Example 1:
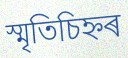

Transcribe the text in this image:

স্মৃতিচিহ্নৰ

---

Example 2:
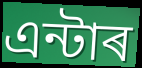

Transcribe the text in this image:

এন্টাৰ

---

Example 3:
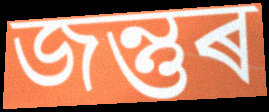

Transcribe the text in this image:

জন্তুৰ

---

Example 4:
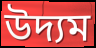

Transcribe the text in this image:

উদ্যম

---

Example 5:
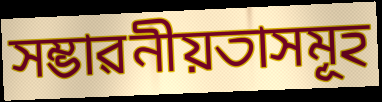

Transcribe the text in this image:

সম্ভাৱনীয়তাসমূহ